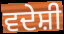
ਵਦੇਸ਼ੀ